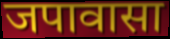
जपावासा